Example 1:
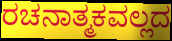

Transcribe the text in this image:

ರಚನಾತ್ಮಕವಲ್ಲದ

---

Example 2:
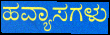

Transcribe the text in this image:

ಹವ್ಯಾಸಗಳು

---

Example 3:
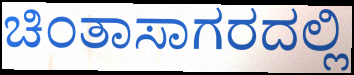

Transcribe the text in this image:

ಚಿಂತಾಸಾಗರದಲ್ಲಿ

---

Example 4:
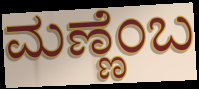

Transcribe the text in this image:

ಮಣ್ಣೆಂಬ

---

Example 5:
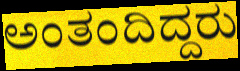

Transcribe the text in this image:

ಅಂತಂದಿದ್ದರು